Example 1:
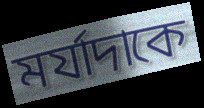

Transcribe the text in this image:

মর্যাদাকে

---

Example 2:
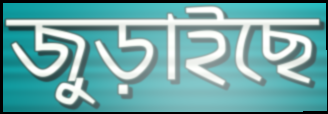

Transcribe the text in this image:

জুড়াইছে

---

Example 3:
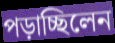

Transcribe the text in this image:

পড়াচ্ছিলেন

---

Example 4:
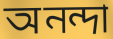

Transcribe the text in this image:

অনন্দা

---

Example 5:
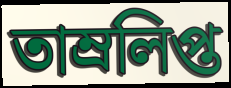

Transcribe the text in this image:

তাম্রলিপ্ত